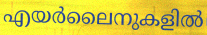
എയർലൈനുകളിൽ